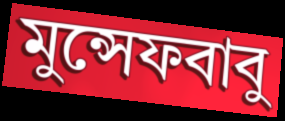
মুন্সেফবাবু